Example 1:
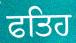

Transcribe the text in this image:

ਫਤਿਹ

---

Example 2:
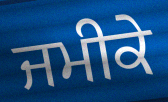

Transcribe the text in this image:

ਜਮੀਕੇ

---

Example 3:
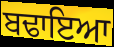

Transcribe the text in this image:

ਬਢਾਇਆ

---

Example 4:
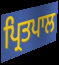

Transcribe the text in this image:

ਪ੍ਰਿਤਪਾਲ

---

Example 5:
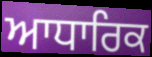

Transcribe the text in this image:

ਆਧਾਰਿਕ